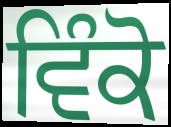
ਵਿੰਕੋ